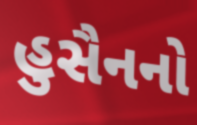
હુસૈનનો